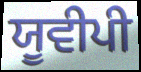
ਯੂਵੀਪੀ